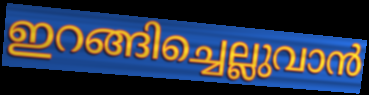
ഇറങ്ങിച്ചെല്ലുവാൻ